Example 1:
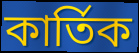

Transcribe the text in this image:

কার্তিক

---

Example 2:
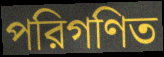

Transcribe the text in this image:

পরিগণিত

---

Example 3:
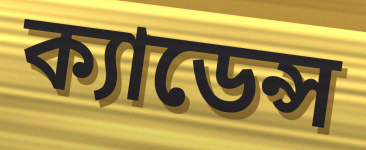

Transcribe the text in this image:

ক্যাডেন্স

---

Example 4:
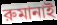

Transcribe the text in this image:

রুমানাই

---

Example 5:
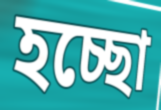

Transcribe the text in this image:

হচ্ছো